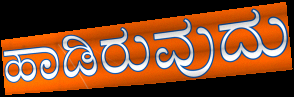
ಹಾಡಿರುವುದು